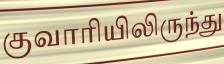
குவாரியிலிருந்து